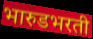
भारुडभरती